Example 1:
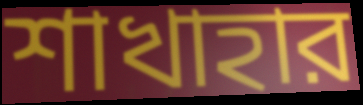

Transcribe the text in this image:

শাখাহার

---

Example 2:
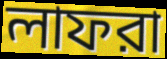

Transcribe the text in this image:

লাফরা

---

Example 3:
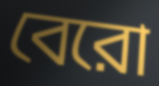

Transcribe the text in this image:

বেরো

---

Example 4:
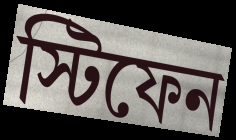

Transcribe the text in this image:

স্টিফেন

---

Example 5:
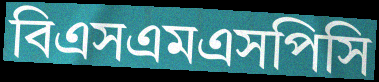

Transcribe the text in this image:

বিএসএমএসপিসি